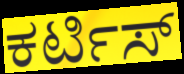
ಕರ್ಟಿಸ್